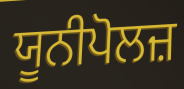
ਯੂਨੀਪੋਲਜ਼